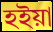
হইয়া